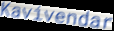
Kavivendar